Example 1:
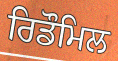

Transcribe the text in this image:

ਰਿਡੌਮਿਲ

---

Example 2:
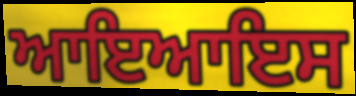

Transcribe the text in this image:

ਆਇਆਇਸ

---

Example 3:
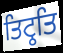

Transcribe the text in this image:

ਤਿਟ੍ਠਤਿ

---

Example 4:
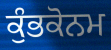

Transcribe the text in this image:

ਕੁੰਭਕੋਨਮ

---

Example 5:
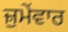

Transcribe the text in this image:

ਜ਼ੁਮੇਂਵਾਰ